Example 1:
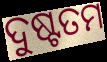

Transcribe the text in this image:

ଦୁଷ୍ଟତମ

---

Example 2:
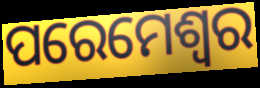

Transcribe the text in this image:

ପରେମେଶ୍ଵର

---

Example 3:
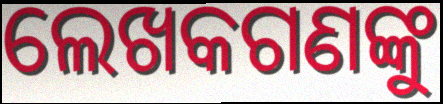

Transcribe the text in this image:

ଲେଖକଗଣଙ୍କୁ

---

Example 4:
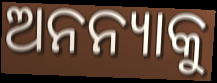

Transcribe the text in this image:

ଅନନ୍ୟାକୁ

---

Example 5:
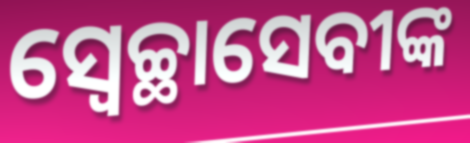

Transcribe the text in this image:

ସ୍ୱେଚ୍ଛାସେବୀଙ୍କ